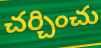
చర్చించు